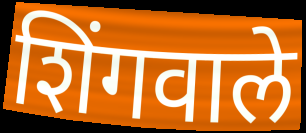
शिंगवाले